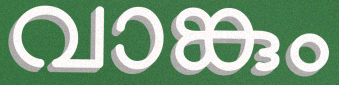
വാങ്കും